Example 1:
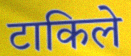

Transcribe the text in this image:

टाकिले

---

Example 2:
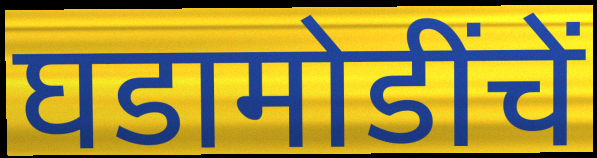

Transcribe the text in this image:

घडामोडींचें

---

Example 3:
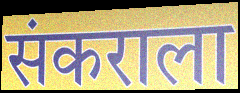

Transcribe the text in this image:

संकराला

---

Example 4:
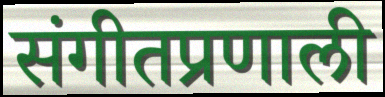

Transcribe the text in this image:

संगीतप्रणाली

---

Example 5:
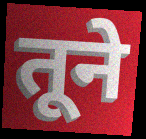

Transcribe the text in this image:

तूने